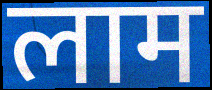
लाम